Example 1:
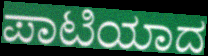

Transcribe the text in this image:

ಪಾಟಿಯಾದ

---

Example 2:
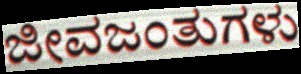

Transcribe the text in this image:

ಜೀವಜಂತುಗಳು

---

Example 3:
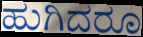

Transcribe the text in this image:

ಹುಗಿದರೂ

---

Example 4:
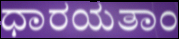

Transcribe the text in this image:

ಧಾರಯತಾಂ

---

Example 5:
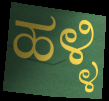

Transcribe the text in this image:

ಹಳ್ಳಿ